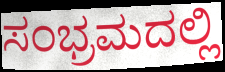
ಸಂಭ್ರಮದಲ್ಲಿ